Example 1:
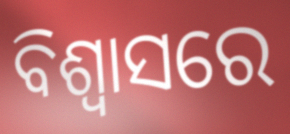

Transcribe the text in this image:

ବିଶ୍ୱାସରେ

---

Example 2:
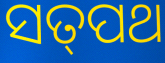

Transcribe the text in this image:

ସତ୍‌ପଥ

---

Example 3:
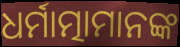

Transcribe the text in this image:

ଧର୍ମାତ୍ମାମାନଙ୍କ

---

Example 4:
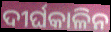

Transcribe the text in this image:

ଦୀର୍ଘକାଳିନ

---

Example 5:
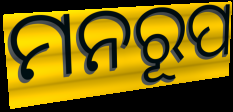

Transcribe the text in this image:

ମନରୂପ